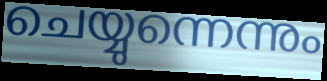
ചെയ്യുന്നെന്നും